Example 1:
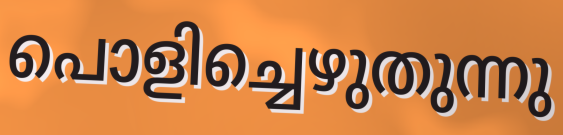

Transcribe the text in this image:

പൊളിച്ചെഴുതുന്നു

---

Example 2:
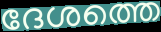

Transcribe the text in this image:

ദേശത്തെ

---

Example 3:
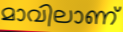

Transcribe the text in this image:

മാവിലാണ്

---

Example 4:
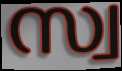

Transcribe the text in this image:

സ്വ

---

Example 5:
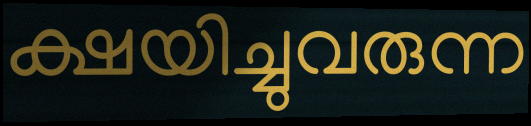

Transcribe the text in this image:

ക്ഷയിച്ചുവരുന്ന